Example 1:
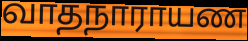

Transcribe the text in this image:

வாதநாராயண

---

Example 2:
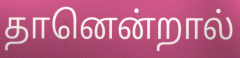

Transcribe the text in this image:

தானென்றால்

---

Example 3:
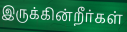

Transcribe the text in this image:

இருக்கின்றீர்கள்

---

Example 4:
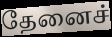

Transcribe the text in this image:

தேனைச்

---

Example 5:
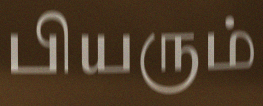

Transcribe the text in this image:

பியரும்